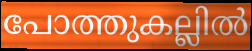
പോത്തുകല്ലിൽ